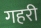
गहरी